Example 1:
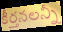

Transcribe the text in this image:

కీర్తనలన్నీ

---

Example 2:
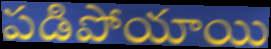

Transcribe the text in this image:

పడిపోయాయి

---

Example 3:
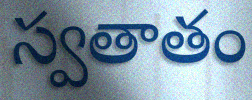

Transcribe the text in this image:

స్వతాతం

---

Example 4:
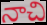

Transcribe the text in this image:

నాచి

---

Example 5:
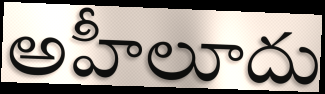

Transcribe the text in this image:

అహీలూదు